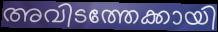
അവിടത്തേക്കായി